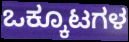
ಒಕ್ಕೂಟಗಳ